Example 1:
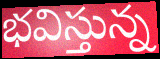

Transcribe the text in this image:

భవిస్తున్న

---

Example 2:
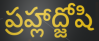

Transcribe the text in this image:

ప్రహ్లాద్జోషి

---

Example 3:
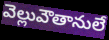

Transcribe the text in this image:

వెల్లువౌతానులే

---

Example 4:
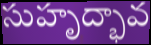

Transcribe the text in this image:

సుహృద్భావ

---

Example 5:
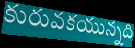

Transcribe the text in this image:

కురువకయున్నది